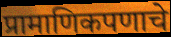
प्रामाणिकपणाचे